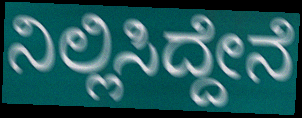
ನಿಲ್ಲಿಸಿದ್ದೇನೆ